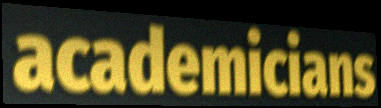
academicians